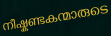
നീഷ്കണ്ടകന്മാരുടെ